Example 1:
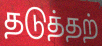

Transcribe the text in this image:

தடுத்தற்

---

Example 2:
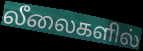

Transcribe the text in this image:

லீலைகளில்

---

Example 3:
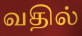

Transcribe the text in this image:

வதில்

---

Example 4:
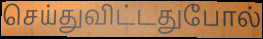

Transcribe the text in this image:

செய்துவிட்டதுபோல்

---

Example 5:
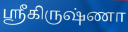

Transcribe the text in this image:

ஸ்ரீகிருஷ்ணா